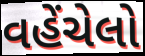
વહેંચેલો